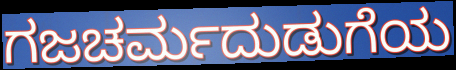
ಗಜಚರ್ಮದುಡುಗೆಯ